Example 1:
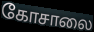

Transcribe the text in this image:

கோசாலை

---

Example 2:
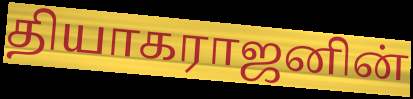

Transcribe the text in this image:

தியாகராஜனின்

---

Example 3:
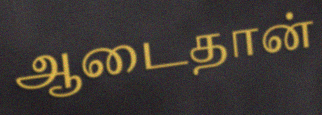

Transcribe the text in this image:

ஆடைதான்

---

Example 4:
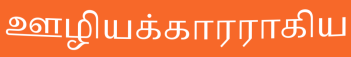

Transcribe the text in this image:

ஊழியக்காரராகிய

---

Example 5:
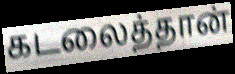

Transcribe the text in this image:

கடலைத்தான்